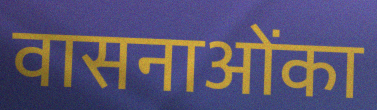
वासनाओंका